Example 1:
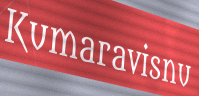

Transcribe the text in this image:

Kumaravisnu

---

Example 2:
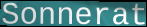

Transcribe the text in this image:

Sonnerat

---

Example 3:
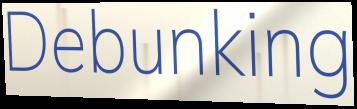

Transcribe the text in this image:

Debunking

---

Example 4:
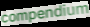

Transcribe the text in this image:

compendium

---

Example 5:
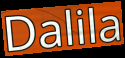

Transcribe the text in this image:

Dalila